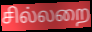
சில்லறை